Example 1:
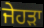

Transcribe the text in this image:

ਜੇਹੜਾ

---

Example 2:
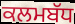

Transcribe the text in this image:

ਕਲਮਬੱਧ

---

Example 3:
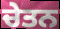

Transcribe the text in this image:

ਚੇਤਨ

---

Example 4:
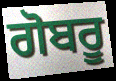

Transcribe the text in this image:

ਗੋਬਰੂ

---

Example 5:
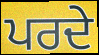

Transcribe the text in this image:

ਪਰਦੇ